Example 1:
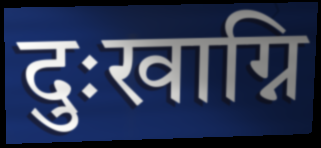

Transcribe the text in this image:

दुःखाग्नि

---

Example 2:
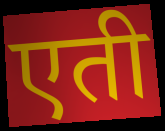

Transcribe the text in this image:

एती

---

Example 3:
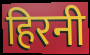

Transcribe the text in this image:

हिरनी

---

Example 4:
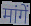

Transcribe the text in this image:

मांगें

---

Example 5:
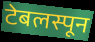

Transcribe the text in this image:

टेबलस्पून